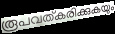
രൂപവത്കരിക്കുകയും